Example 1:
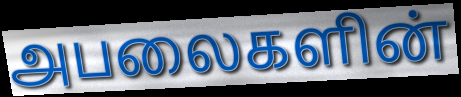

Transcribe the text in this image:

அபலைகளின்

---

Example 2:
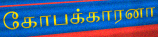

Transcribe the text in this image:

கோபக்காரனா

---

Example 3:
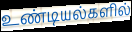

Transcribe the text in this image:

உண்டியல்களில்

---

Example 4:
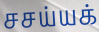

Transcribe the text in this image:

சசய்யக்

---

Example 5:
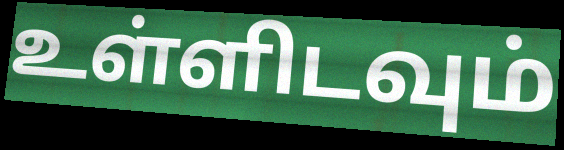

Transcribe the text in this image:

உள்ளிடவும்